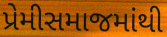
પ્રેમીસમાજમાંથી